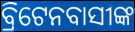
ବ୍ରିଟେନବାସୀଙ୍କ